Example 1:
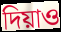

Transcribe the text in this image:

দিয়াও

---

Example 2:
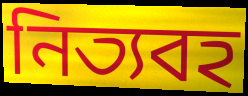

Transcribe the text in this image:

নিত্যবহ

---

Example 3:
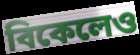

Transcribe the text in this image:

বিকেলেও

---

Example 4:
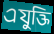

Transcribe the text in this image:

এযুক্তি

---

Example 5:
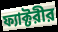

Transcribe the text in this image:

ফ্যাক্টরীর